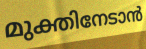
മുക്തിനേടാൻ